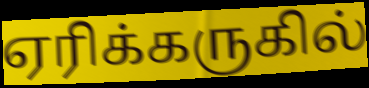
ஏரிக்கருகில்